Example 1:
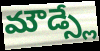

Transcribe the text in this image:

మౌడ్స్లే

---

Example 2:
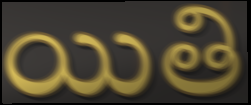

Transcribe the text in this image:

యితి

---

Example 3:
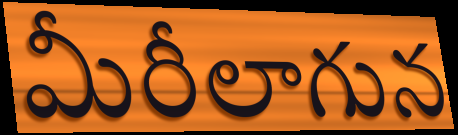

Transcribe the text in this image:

మీరీలాగున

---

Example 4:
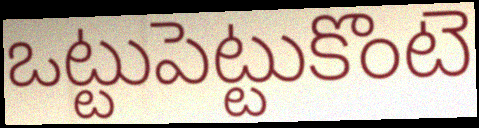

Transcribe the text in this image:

ఒట్టుపెట్టుకొంటె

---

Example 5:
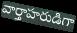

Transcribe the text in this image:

వార్తాహరుడిగా